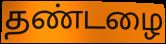
தண்டழை